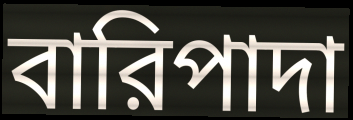
বারিপাদা